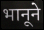
भानूने